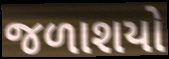
જળાશયો